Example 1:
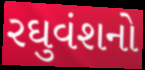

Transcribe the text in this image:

રઘુવંશનો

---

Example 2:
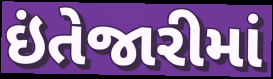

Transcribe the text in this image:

ઇંતેજારીમાં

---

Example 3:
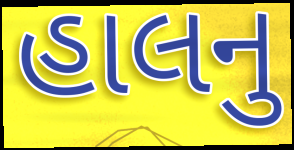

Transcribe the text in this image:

હાલનુ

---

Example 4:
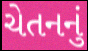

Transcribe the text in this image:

ચેતનનું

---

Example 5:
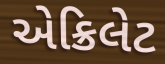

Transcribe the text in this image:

એક્રિલેટ